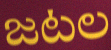
జటల